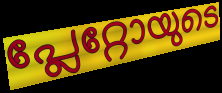
പ്ലേറ്റോയുടെ